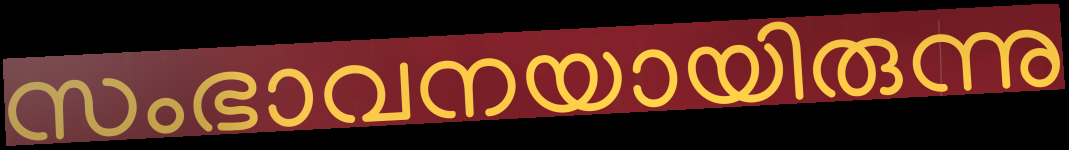
സംഭാവനയായിരുന്നു